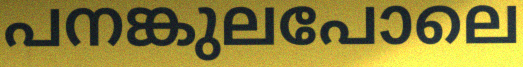
പനങ്കുലപോലെ